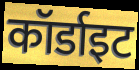
कॉर्डाइट